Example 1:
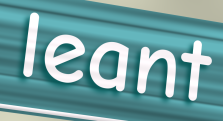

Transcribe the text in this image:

leant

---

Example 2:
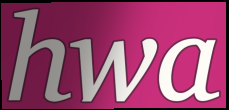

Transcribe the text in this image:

hwa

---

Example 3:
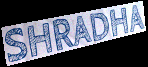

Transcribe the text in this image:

SHRADHA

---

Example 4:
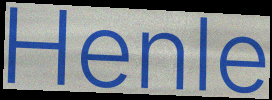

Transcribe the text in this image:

Henle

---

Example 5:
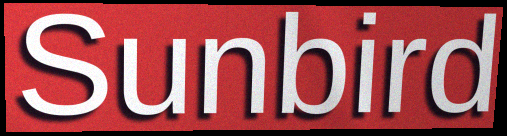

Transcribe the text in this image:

Sunbird